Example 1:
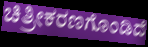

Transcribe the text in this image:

ಚಿತ್ರೀಕರಣಗೊಂಡಿದೆ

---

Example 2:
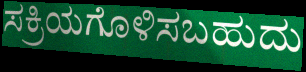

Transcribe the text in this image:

ಸಕ್ರಿಯಗೊಳಿಸಬಹುದು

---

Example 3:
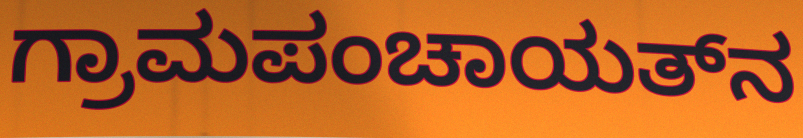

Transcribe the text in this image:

ಗ್ರಾಮಪಂಚಾಯತ್‌ನ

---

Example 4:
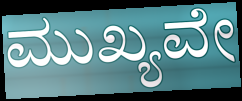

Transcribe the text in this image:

ಮುಖ್ಯವೇ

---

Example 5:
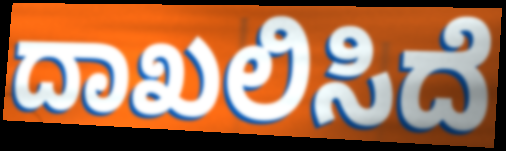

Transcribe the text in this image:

ದಾಖಲಿಸಿದೆ